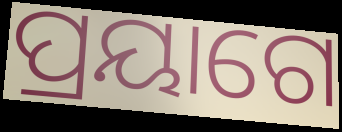
ପ୍ରୟାଗେ